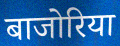
बाजोरिया